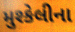
મુશ્કેલીના